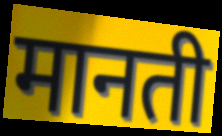
मानती